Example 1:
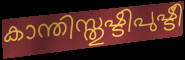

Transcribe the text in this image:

കാന്തിസ്തുഷ്ടിപുഷ്ടീ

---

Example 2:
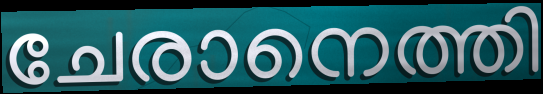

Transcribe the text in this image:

ചേരാനെത്തി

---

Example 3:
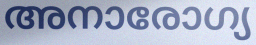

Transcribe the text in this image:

അനാരോഗ്യ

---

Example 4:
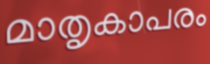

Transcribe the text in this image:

മാതൃകാപരം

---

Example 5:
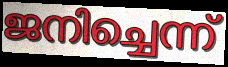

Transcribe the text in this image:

ജനിച്ചെന്ന്